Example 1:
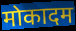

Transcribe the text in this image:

मोकादम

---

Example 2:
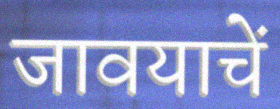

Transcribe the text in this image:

जावयाचें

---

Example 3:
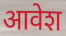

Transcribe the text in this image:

आवेश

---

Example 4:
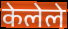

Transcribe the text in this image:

केलेले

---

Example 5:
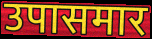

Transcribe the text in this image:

उपासमार